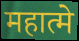
महात्मे